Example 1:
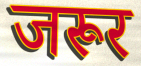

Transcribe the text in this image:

जरूर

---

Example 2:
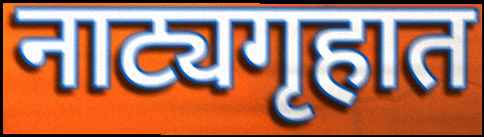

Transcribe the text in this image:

नाट्यगृहात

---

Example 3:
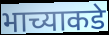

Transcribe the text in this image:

भाच्याकडे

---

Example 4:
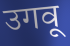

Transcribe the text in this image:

उगवू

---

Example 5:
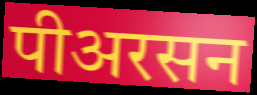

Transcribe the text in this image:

पीअरसन